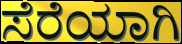
ಸೆರೆಯಾಗಿ